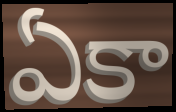
ఏకా